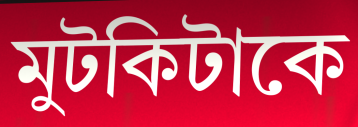
মুটকিটাকে